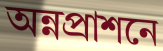
অন্নপ্রাশনে